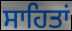
ਸਾਹਿਤਾਂ